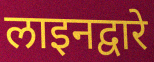
लाइनद्वारे